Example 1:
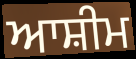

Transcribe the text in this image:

ਆਸ਼ੀਮ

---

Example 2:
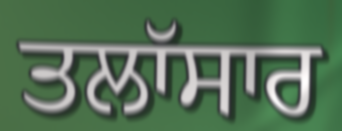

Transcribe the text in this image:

ਤਲਾੱਸਾਰ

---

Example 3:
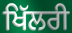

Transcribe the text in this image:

ਖਿੱਲਰੀ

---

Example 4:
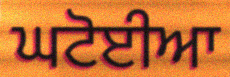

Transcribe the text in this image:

ਘਟੋਈਆ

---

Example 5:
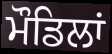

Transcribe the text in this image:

ਮੌਡਿਲਾਂ